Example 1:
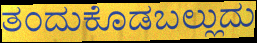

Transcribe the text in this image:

ತಂದುಕೊಡಬಲ್ಲುದು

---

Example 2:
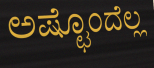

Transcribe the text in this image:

ಅಷ್ಟೊಂದೆಲ್ಲ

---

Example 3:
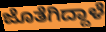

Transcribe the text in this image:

ಜೊತೆಗಿದ್ದಾಳೆ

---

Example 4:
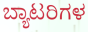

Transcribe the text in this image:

ಬ್ಯಾಟರಿಗಳ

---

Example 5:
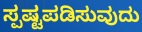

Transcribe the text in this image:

ಸ್ಪಷ್ಟಪಡಿಸುವುದು